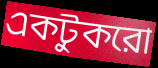
একটুকরো